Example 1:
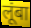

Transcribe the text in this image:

लूंबा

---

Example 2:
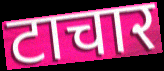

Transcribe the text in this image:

टाचार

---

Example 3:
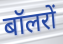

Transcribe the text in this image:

बॉलरों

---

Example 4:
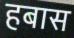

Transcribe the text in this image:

हबास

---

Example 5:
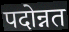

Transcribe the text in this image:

पदोन्नत